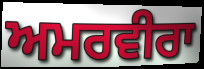
ਅਮਰਵੀਰਾ